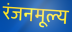
रंजनमूल्य